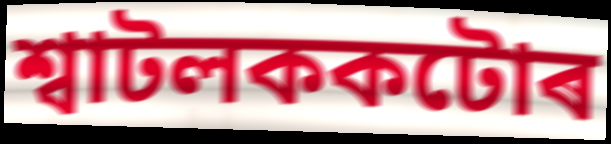
শ্বাটলককটোৰ